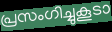
പ്രസംഗിച്ചുകൂടാ